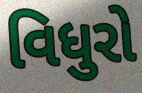
વિધુરો